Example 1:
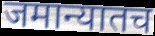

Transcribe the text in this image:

जमान्यातच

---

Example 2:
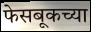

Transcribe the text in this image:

फेसबूकच्या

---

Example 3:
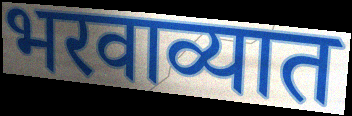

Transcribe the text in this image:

भरवाव्यात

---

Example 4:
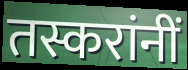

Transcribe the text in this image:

तस्करांनीं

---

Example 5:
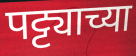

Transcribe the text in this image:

पट्ट्याच्या